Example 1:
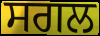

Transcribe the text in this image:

ਸਗਲ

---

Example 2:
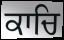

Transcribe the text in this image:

ਕਾਚਿ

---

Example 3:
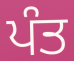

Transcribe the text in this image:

ਪੰਤ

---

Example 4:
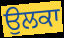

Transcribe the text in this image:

ਉਲਕਾ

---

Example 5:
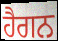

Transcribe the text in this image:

ਹੈਗਨ